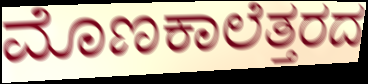
ಮೊಣಕಾಲೆತ್ತರದ